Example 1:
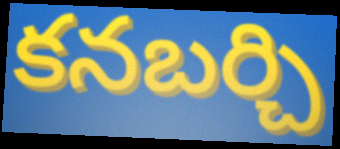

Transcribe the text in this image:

కనబర్చి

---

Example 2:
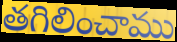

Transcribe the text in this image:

తగిలించాము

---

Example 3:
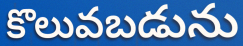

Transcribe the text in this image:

కొలువబడును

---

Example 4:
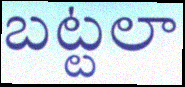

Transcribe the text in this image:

బట్టలా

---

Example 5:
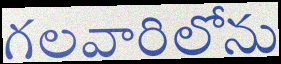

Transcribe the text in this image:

గలవారిలోను